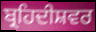
ਬ੍ਰਹਿਦੀਸ਼ਵਰ